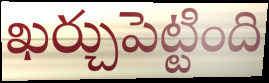
ఖర్చుపెట్టింది